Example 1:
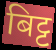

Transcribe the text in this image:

बिट्ट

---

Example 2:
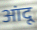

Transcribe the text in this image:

आंदू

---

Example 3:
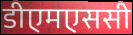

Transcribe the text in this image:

डीएमएससी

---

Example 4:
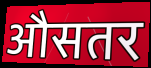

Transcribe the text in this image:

औसतर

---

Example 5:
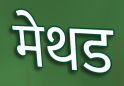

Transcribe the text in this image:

मेथड